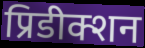
प्रिडीक्शन